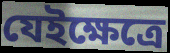
যেইক্ষেত্রে